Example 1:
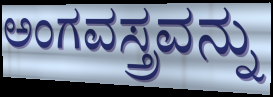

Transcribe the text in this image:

ಅಂಗವಸ್ತ್ರವನ್ನು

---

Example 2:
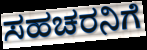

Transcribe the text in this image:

ಸಹಚರನಿಗೆ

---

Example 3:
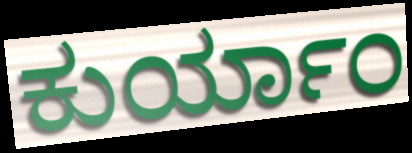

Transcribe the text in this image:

ಕುರ್ಯಾಂ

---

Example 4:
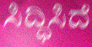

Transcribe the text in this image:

ಸಿದ್ಧಿಸಿದೆ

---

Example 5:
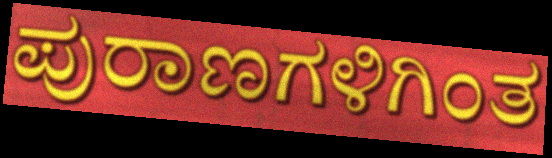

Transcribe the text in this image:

ಪುರಾಣಗಳಿಗಿಂತ